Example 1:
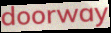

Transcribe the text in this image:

doorway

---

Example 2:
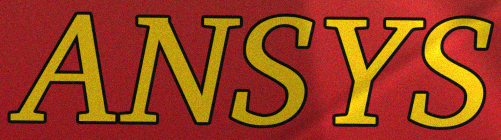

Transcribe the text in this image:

ANSYS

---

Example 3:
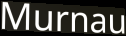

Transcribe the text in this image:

Murnau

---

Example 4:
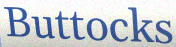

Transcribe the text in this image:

Buttocks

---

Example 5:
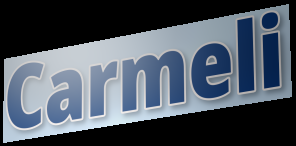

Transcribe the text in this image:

Carmeli